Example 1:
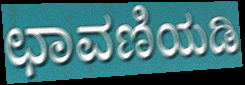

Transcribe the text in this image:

ಛಾವಣಿಯಡಿ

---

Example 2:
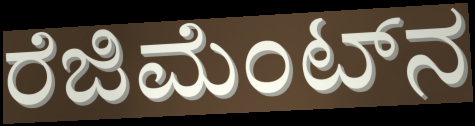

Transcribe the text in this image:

ರೆಜಿಮೆಂಟ್‌ನ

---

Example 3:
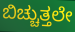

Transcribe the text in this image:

ಬಿಚ್ಚುತ್ತಲೇ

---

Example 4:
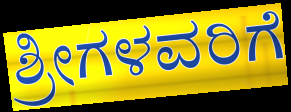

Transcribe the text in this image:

ಶ್ರೀಗಳವರಿಗೆ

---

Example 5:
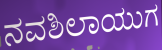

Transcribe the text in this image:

ನವಶಿಲಾಯುಗ